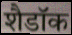
शैडॉक